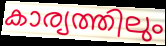
കാര്യത്തിലും